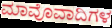
ಮಾವೊವಾದಿಗಳ